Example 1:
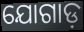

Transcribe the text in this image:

ଯୋଗାଡ଼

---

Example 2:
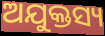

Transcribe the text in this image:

ଅଯୁକ୍ତସ୍ୟ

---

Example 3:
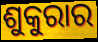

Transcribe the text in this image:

ଶୁକୁରାର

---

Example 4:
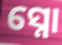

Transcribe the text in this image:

ସ୍ନୋ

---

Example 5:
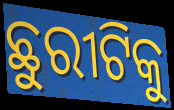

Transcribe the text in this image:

ଛୁରୀଟିକୁ